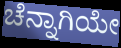
ಚೆನ್ನಾಗಿಯೇ